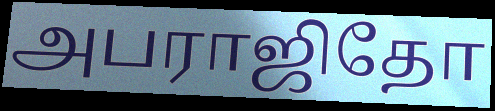
அபராஜிதோ